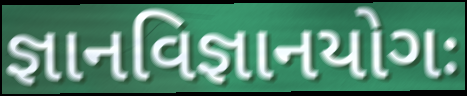
જ્ઞાનવિજ્ઞાનયોગઃ